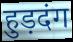
हुड़दंग